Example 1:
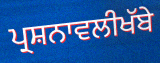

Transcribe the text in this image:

ਪ੍ਰਸ਼ਨਾਵਲੀਖੱਬੇ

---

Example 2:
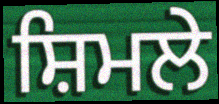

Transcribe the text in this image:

ਸ਼ਿਮਲੇ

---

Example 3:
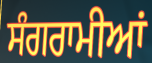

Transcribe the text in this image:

ਸੰਗਰਾਮੀਆਂ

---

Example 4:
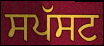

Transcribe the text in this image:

ਸਪੱਸਟ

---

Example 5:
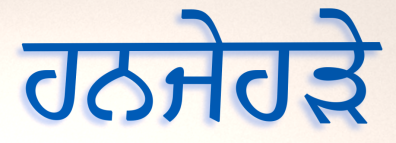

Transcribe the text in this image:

ਹਨਜੇਹੜੇ